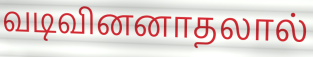
வடிவினனாதலால்